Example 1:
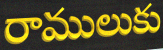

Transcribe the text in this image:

రాములుకు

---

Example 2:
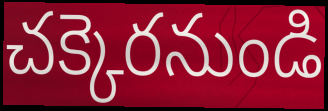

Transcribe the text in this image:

చక్కెరనుండి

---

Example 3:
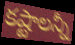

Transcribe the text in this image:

కష్టాలన్నీ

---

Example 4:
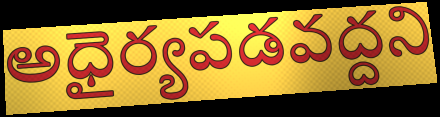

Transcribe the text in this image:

అధైర్యపడవద్దని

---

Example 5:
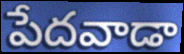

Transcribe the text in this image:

పేదవాడా